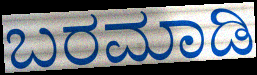
ಬರಮಾಡಿ